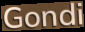
Gondi